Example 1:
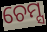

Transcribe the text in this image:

ଚେମ୍ସ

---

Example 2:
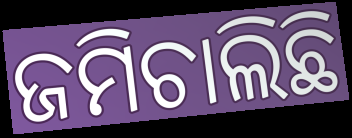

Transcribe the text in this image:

ଜମିଚାଲିଛି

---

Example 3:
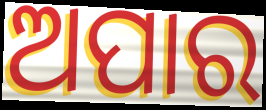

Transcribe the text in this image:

ଅପାର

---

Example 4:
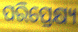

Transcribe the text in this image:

ପରିପ୍ରେକ୍ଷ୍ୟ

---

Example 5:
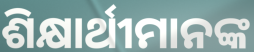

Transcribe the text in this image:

ଶିକ୍ଷାର୍ଥୀମାନଙ୍କ